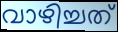
വാഴിച്ചത്